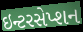
ઇન્ટરસેપ્શન